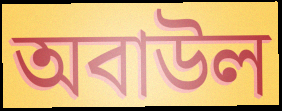
অবাউল